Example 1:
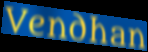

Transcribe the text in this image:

Vendhan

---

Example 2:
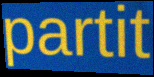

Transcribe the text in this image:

partit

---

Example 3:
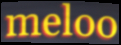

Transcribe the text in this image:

meloo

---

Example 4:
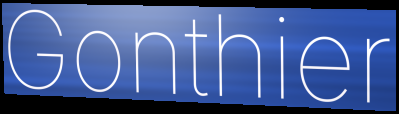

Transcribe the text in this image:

Gonthier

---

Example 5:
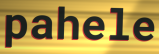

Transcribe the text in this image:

pahele